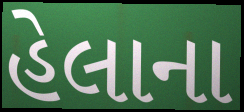
હેલાના